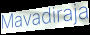
Mavadiraja